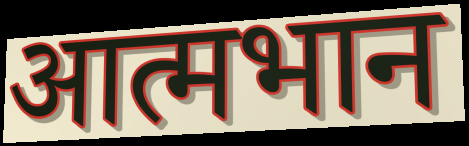
आत्मभान